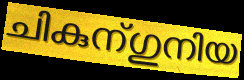
ചികുന്ഗുനിയ